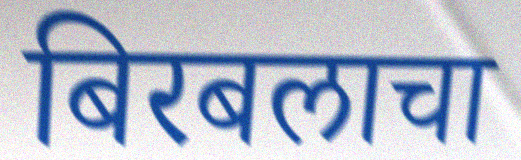
बिरबलाचा